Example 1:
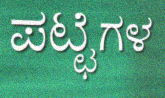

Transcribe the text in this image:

ಪಟ್ಟೆಗಳ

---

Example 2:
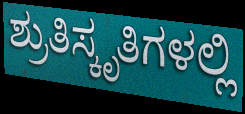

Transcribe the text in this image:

ಶ್ರುತಿಸ್ಕೃತಿಗಳಲ್ಲಿ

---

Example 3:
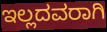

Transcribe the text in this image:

ಇಲ್ಲದವರಾಗಿ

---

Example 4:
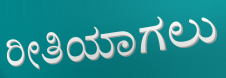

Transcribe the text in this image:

ರೀತಿಯಾಗಲು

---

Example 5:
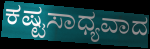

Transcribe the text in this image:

ಕಷ್ಟಸಾಧ್ಯವಾದ